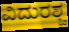
ವಿದುರಶ್ಚ